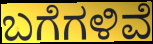
ಬಗೆಗಳಿವೆ